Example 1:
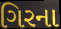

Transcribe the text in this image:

ગિરના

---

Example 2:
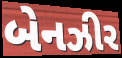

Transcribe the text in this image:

બેનઝીર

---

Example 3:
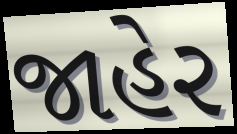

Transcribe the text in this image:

જાહેર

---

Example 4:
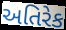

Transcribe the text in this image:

અતિરેક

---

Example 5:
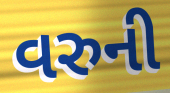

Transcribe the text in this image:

વરુની